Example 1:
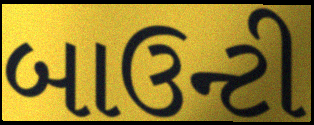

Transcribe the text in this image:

બાઉન્ટી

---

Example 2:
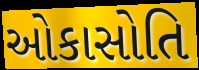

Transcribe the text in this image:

ઓકાસોતિ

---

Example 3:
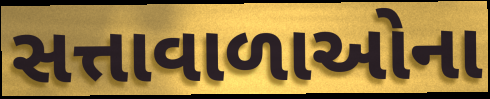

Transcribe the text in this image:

સત્તાવાળાઓના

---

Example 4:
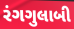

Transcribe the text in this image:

રંગગુલાબી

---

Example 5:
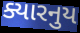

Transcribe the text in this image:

ક્યારનુય